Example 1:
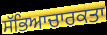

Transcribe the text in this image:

ਸੱਭਿਆਚਾਰਕਤਾ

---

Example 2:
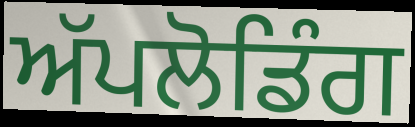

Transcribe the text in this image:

ਅੱਪਲੋਡਿੰਗ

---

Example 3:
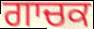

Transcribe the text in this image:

ਗਾਚਕ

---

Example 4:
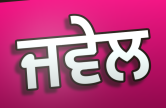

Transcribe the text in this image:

ਜਵੇਲ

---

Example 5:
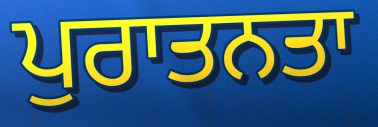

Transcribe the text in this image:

ਪੁਰਾਤਨਤਾ